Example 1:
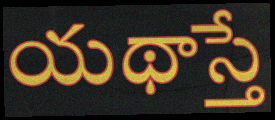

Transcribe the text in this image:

యథాస్తే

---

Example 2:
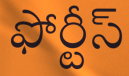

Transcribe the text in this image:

ఫోర్టీస్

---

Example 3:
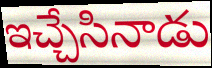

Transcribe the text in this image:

ఇచ్చేసినాడు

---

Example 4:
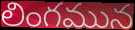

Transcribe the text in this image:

లింగమున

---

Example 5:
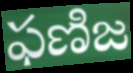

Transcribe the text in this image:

ఫణిజ